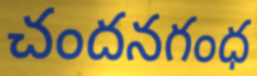
చందనగంధ